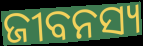
ଜୀବନସ୍ୟ